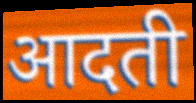
आदती